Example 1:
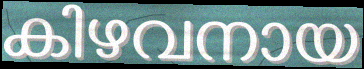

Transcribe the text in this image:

കിഴവനായ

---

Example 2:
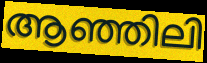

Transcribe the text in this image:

ആഞ്ഞിലി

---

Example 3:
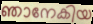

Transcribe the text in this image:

ഞാനേകിയ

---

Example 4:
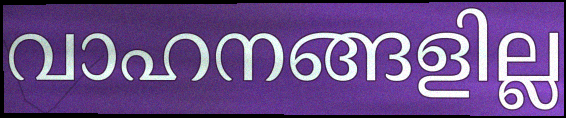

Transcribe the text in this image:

വാഹനങ്ങളില്ല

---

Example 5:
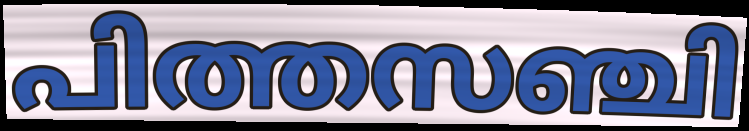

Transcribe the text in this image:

പിത്തസഞ്ചി